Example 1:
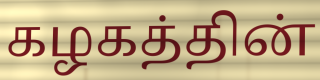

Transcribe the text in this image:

கழகத்தின்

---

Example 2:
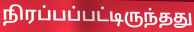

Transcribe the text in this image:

நிரப்பப்பட்டிருந்தது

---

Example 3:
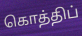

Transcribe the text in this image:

கொத்திப்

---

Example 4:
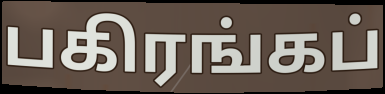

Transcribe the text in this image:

பகிரங்கப்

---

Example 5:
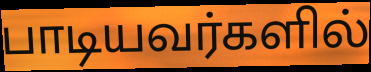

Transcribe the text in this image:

பாடியவர்களில்